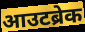
आउटब्रेक